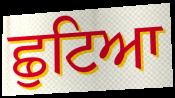
ਛੁਟਿਆ